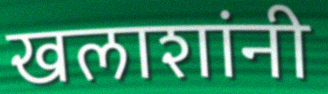
खलाशांनी